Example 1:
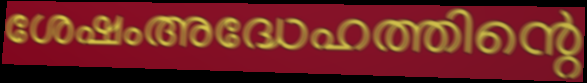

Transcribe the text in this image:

ശേഷംഅദ്ധേഹത്തിന്റെ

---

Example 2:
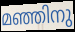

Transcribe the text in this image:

മഞ്ഞിനു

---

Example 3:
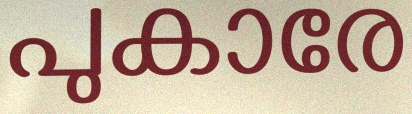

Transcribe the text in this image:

പുകാരേ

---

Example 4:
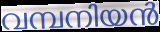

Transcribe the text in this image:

വമ്പനിയൻ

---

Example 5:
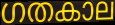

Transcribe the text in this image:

ഗതകാല